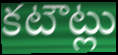
కటౌట్లు